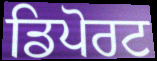
ਡਿਪੋਰਟ